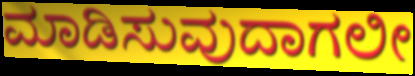
ಮಾಡಿಸುವುದಾಗಲೀ